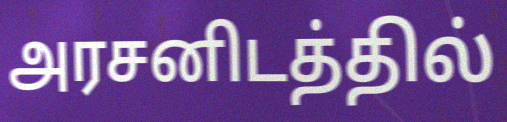
அரசனிடத்தில்